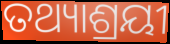
ତଥ୍ୟାଶ୍ରୟୀ